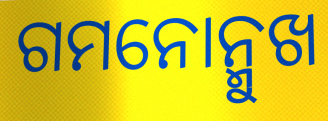
ଗମନୋନ୍ମୁଖ